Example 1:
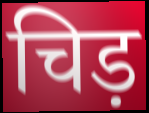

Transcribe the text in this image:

चिड़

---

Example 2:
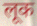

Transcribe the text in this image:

लूक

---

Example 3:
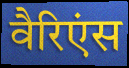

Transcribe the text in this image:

वैरिएंस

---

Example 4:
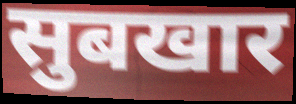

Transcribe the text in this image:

सुबखार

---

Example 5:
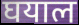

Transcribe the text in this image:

घयाल